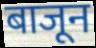
बाजून